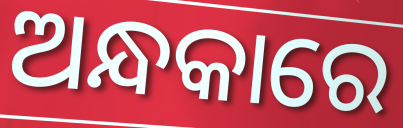
ଅନ୍ଧକାରେ